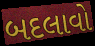
બદલાવો